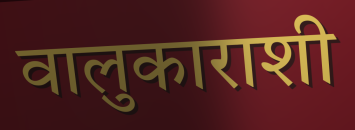
वालुकाराशी